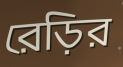
রেড়ির